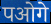
पओगे